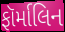
ફૉર્માલિન